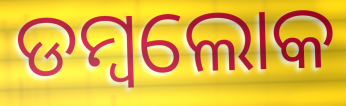
ଡମ୍ବଲୋକ